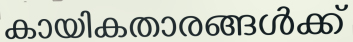
കായികതാരങ്ങൾക്ക്